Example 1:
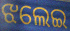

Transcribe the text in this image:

ଝଲେଇ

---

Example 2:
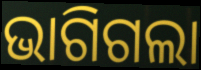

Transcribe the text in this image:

ଭାଗିଗଲା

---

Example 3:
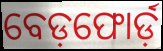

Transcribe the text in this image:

ବେଡ଼ଫୋର୍ଡ଼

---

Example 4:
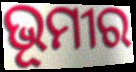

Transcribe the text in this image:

ଭୂମୀର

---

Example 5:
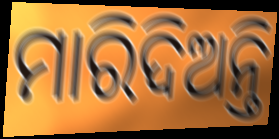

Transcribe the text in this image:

ମାରିଦିଅନ୍ତି